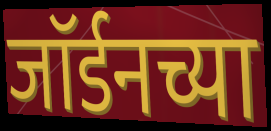
जॉर्डनच्या